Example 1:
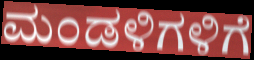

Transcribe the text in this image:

ಮಂಡಳಿಗಳಿಗೆ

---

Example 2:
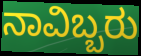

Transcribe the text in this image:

ನಾವಿಬ್ಬರು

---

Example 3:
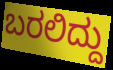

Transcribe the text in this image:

ಬರಲಿದ್ದು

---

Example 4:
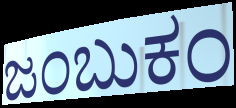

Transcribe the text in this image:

ಜಂಬುಕಂ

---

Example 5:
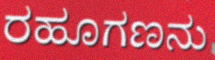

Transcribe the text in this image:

ರಹೂಗಣನು